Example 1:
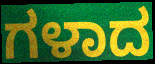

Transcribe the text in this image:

ಗಳಾದ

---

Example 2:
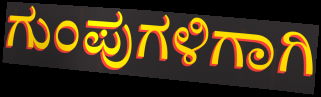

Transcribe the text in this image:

ಗುಂಪುಗಳಿಗಾಗಿ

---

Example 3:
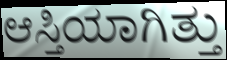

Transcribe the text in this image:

ಆಸ್ತಿಯಾಗಿತ್ತು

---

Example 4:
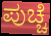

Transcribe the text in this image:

ಪುಚ್ಚೆ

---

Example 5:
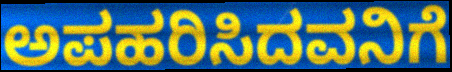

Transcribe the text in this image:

ಅಪಹರಿಸಿದವನಿಗೆ